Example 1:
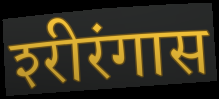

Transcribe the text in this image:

श्रीरंगास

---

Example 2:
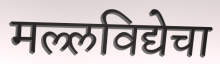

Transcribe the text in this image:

मल्लविद्येचा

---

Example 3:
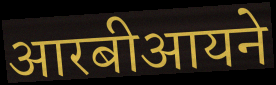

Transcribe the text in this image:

आरबीआयने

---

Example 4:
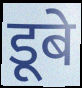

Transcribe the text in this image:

डूबे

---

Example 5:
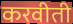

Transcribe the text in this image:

करवीती